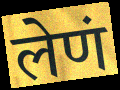
लेणं